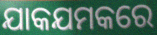
ଯାକଯମକରେ